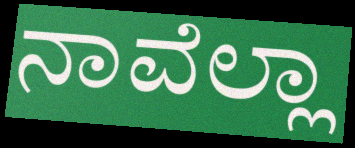
ನಾವೆಲ್ಲಾ